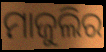
ମାଜୁଲିର